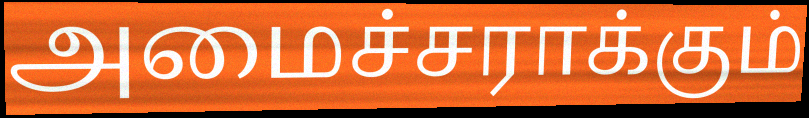
அமைச்சராக்கும்